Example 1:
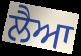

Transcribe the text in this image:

ਲੈਆ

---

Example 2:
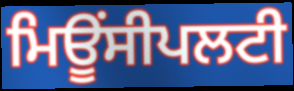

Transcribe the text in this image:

ਮਿਊਂਸੀਪਲਟੀ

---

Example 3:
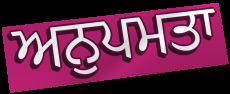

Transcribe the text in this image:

ਅਨੁਪਮਤਾ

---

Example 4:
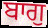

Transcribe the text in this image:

ਬਾਗੁ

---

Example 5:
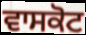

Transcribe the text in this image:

ਵਾਸਕੋਟ